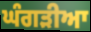
ਘੰਗੜੀਆ